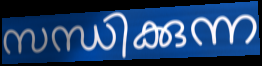
സന്ധിക്കുന്ന